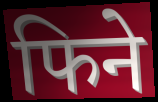
फिने